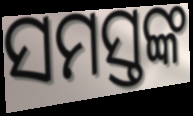
ସମସ୍ତଙ୍କ